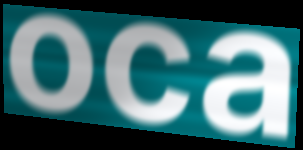
oca